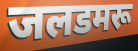
जलडमरू